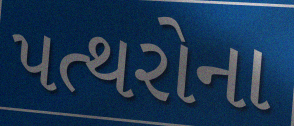
પત્થરોના